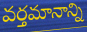
వర్తమానాన్ని